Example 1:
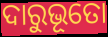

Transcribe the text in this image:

ଦାରୁଭୂତୋ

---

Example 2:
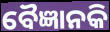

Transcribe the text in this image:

ବୈଜ୍ଞାନକି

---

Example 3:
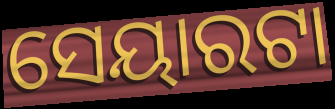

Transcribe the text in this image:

ସେୟାରଟା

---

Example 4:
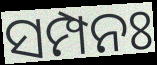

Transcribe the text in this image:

ସମ୍ପନଃ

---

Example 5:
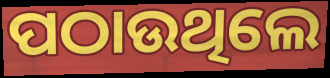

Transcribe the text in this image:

ପଠାଉଥିଲେ